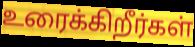
உரைக்கிறீர்கள்